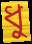
ধু